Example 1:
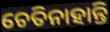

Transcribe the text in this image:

ଚେତିନାହାନ୍ତି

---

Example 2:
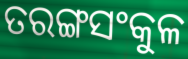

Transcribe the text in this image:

ତରଙ୍ଗସଂକୁଳ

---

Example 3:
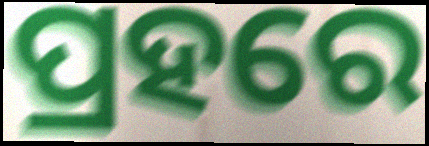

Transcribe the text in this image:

ପ୍ରହରେ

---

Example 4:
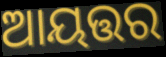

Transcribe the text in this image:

ଆୟତ୍ତର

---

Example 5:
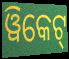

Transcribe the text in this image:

ୱିକେଟ୍